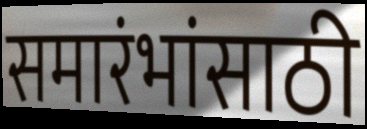
समारंभांसाठी